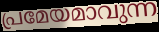
പ്രമേയമാവുന്ന